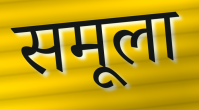
समूला